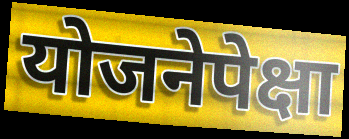
योजनेपेक्षा